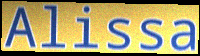
Alissa